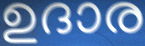
ഉദാര